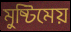
মুষ্টিমেয়